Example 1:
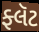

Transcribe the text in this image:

ફ્લૅટ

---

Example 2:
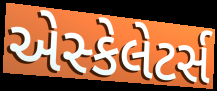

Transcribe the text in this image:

એસ્કેલેટર્સ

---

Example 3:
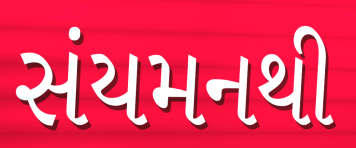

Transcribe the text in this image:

સંયમનથી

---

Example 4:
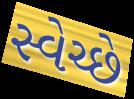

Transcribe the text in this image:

સ્વેચ્છે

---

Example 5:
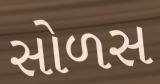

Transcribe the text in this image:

સોળસ